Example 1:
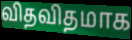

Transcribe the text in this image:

விதவிதமாக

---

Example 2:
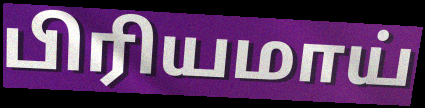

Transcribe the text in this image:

பிரியமாய்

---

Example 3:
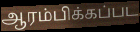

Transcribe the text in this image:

ஆரம்பிக்கப்பட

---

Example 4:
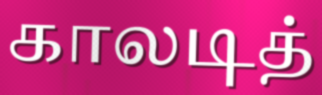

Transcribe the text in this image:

காலடித்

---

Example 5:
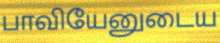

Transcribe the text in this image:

பாவியேனுடைய